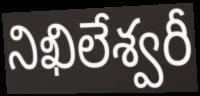
నిఖిలేశ్వరీ